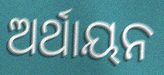
ଅର୍ଥାୟନ